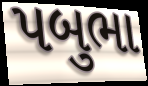
પબુભા